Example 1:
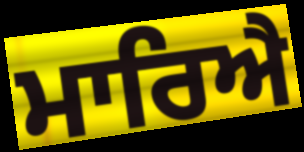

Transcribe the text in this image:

ਮਾਰਿਐ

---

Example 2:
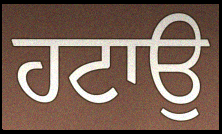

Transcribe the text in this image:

ਹਟਾਉ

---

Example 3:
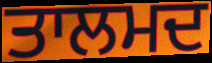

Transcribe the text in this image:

ਤਾਲਮਦ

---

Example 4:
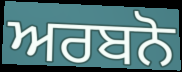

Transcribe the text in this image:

ਅਰਬਨੋ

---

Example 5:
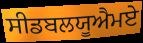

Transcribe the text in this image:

ਸੀਡਬਲਯੂਐਮਏ